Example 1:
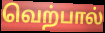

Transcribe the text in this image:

வெற்பால்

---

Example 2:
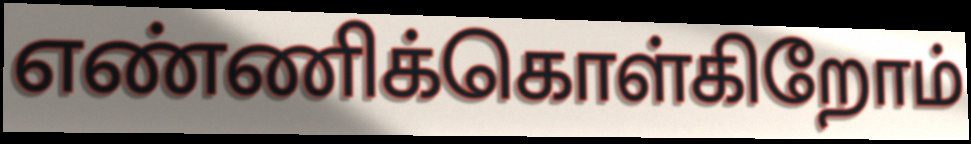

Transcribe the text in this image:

எண்ணிக்கொள்கிறோம்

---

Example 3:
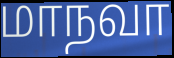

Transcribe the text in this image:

மாநவா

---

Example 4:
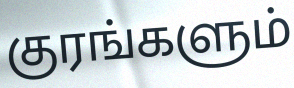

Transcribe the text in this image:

குரங்களும்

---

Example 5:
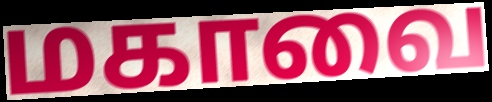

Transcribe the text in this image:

மகாவை